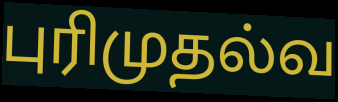
புரிமுதல்வ